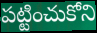
పట్టించుకోని